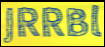
JRRBl